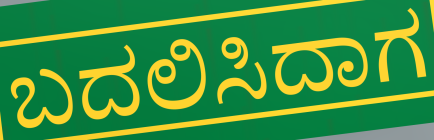
ಬದಲಿಸಿದಾಗ